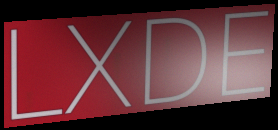
LXDE